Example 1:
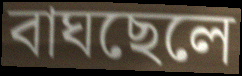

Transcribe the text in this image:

বাঘছেলে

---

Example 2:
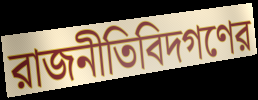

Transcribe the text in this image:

রাজনীতিবিদগণের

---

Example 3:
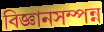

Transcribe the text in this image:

বিজ্ঞানসম্পন্ন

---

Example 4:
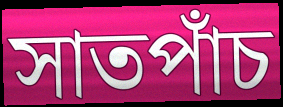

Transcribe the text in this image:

সাতপাঁচ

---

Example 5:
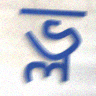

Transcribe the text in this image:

ভ্ল